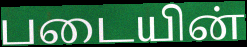
படையின்